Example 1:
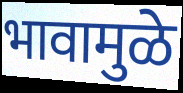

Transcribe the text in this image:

भावामुळे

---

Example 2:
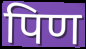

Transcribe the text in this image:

पिण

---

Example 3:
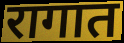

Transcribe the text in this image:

रागात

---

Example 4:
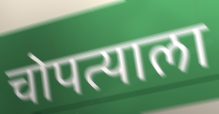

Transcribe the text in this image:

चोपत्याला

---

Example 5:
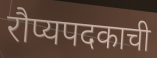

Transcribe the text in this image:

रौप्यपदकाची